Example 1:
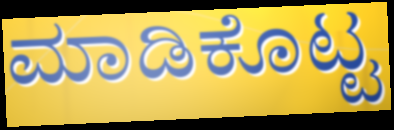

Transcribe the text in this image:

ಮಾಡಿಕೊಟ್ಟ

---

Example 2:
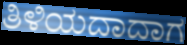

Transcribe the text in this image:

ತಿಳಿಯದಾದಾಗ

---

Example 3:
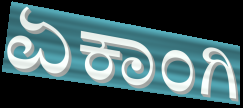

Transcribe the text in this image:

ಏಕಾಂಗಿ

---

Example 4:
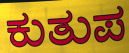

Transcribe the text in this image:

ಕುತುಪ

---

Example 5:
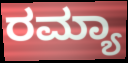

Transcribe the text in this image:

ರಮ್ಯಾ